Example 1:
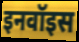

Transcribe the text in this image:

इनवॉइस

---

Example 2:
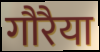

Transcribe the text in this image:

गौरैया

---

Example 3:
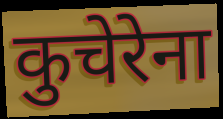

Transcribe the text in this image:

कुचेरेना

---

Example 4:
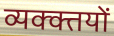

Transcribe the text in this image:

व्यक्क्तयों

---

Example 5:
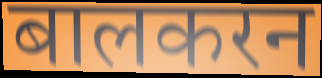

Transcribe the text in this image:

बालकरन